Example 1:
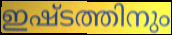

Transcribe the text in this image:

ഇഷ്ടത്തിനും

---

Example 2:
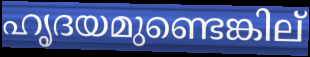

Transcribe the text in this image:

ഹൃദയമുണ്ടെങ്കില്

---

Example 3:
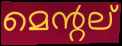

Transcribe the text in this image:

മെന്റല്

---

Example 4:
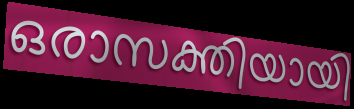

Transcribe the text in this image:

ഒരാസക്തിയായി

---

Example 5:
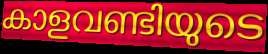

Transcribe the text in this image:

കാളവണ്ടിയുടെ